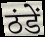
ठंडें